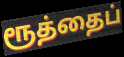
ரூத்தைப்